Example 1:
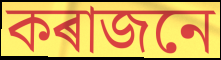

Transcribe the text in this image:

কৰাজনে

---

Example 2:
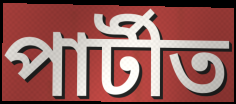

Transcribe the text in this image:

পাৰ্টীত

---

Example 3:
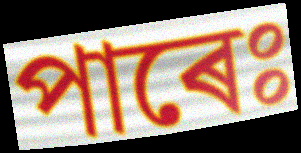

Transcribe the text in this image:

পাৰেঃ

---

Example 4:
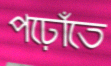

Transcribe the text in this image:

পঢ়োঁতে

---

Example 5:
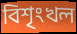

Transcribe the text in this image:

বিশৃংখল